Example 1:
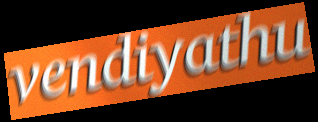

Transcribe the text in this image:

vendiyathu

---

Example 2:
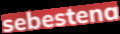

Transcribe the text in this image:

sebestena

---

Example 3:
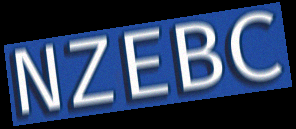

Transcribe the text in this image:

NZEBC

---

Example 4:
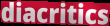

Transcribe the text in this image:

diacritics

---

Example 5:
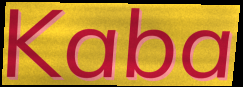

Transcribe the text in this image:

Kaba